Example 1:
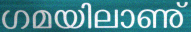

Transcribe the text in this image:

ഗമയിലാണു്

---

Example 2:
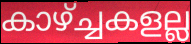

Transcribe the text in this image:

കാഴ്ച്ചകളല്ല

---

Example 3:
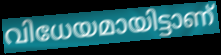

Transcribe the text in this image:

വിധേയമായിട്ടാണ്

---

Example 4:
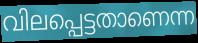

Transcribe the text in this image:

വിലപ്പെട്ടതാണെന്ന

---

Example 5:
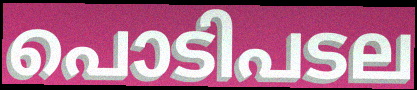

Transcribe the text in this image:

പൊടിപടല